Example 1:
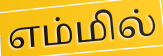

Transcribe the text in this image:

எம்மில்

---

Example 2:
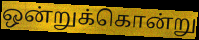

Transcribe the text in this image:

ஒன்றுக்கொன்று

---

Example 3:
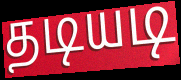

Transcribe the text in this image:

தடியடி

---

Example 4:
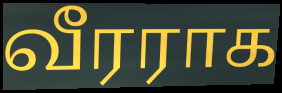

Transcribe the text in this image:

வீரராக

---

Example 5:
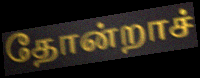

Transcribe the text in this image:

தோன்றாச்